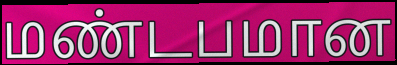
மண்டபமான